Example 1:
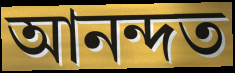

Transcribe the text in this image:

আনন্দত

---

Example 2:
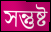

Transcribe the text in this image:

সন্তুষ্ট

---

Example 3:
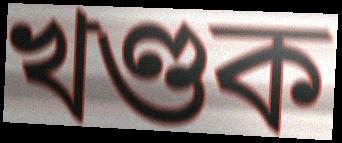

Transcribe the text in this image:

খণ্ডক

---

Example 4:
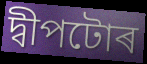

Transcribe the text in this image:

দ্বীপটোৰ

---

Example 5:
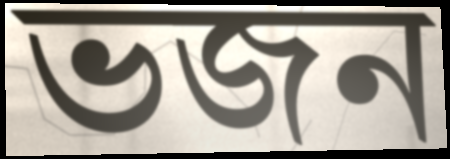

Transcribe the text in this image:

ভজন